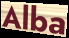
Alba